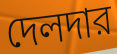
দেলদার